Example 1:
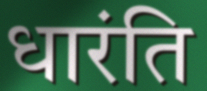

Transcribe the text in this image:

धारंति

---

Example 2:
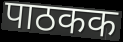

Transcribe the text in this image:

पाठकक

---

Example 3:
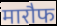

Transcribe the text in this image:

मारौफ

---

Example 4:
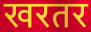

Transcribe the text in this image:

खरतर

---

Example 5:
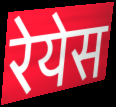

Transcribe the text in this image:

रेयेस